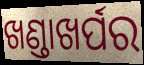
ଖଣ୍ଡାଖର୍ପର